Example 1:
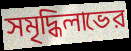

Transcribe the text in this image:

সমৃদ্ধিলাভের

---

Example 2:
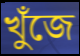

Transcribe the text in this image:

খুঁজে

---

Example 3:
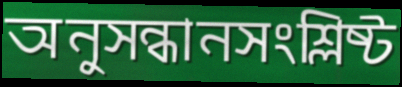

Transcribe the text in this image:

অনুসন্ধানসংশ্লিষ্ট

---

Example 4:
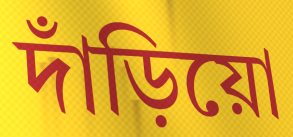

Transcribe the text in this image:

দাঁড়িয়ো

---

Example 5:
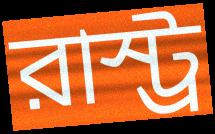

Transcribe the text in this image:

রাস্ট্র